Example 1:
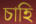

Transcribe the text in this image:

চাহি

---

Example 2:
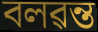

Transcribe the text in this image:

বলৱন্ত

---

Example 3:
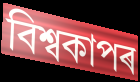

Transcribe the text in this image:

বিশ্বকাপৰ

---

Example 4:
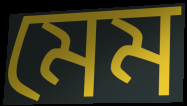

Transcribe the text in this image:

মেম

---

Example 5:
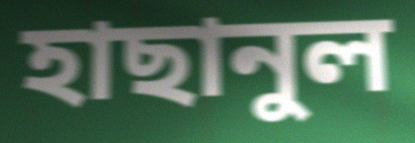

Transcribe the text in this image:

হাছানুল